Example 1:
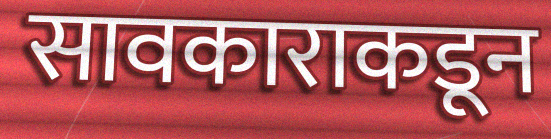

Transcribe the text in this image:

सावकाराकडून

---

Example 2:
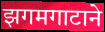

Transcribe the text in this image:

झगमगाटाने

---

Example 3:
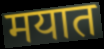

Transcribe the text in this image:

मयात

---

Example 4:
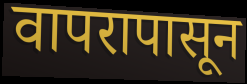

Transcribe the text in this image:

वापरापासून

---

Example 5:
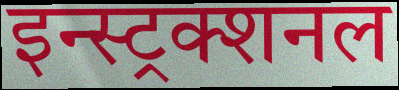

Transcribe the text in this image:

इन्स्ट्रक्शनल